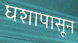
घशापासून